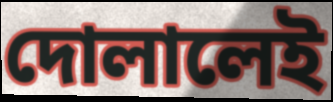
দোলালেই